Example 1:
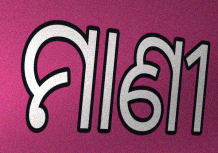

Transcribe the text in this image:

ମାଣୀ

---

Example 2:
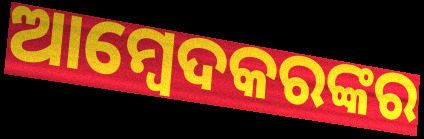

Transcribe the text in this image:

ଆମ୍ବେଦକରଙ୍କର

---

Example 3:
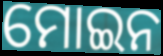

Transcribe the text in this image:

ମୋଇନ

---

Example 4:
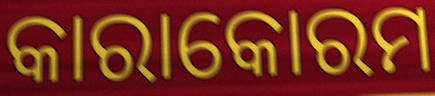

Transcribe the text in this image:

କାରାକୋରମ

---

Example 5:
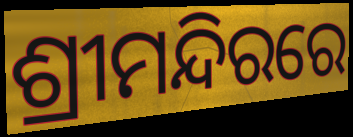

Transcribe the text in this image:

ଶ୍ରୀମନ୍ଦିରରେ